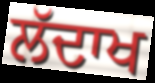
ਲੱਦਾਖ